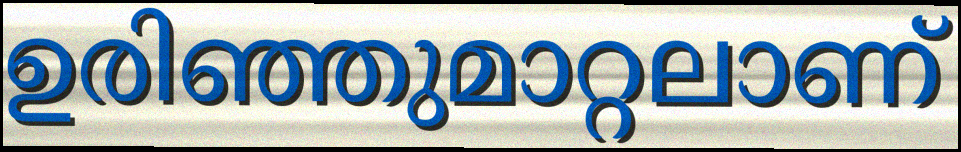
ഉരിഞ്ഞുമാറ്റലാണ്